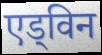
एड्विन